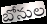
బోనుల